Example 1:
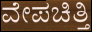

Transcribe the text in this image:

ವೇಪಚಿತ್ತಿ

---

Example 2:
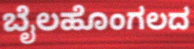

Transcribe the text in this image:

ಬೈಲಹೊಂಗಲದ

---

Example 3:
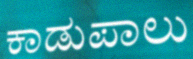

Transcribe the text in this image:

ಕಾಡುಪಾಲು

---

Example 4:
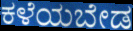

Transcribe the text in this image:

ಕಳೆಯಬೇಡ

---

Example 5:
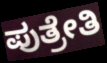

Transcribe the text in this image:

ಪುತ್ರೇತಿ